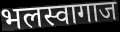
भलस्वागाज